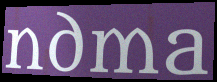
ndma